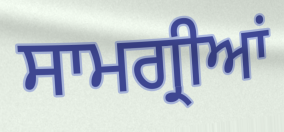
ਸਾਮਗ੍ਰੀਆਂ